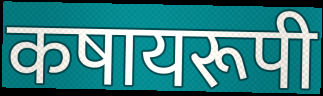
कषायरूपी